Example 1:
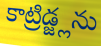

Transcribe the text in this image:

కాట్రిడ్జ్లను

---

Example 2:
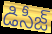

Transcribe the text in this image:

డిసీజ్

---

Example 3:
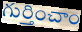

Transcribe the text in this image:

గుర్తించాం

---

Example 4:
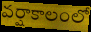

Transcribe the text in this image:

వర్షాకాలంలో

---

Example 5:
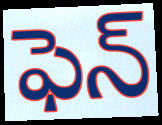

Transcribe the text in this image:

ఫెన్